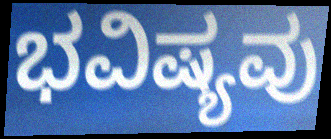
ಭವಿಷ್ಯವು